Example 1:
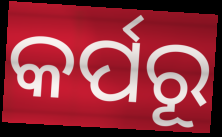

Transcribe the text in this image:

କର୍ପରୂ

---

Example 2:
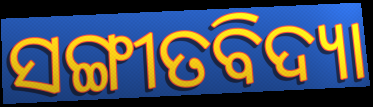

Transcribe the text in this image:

ସଙ୍ଗୀତବିଦ୍ୟା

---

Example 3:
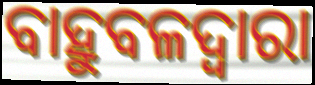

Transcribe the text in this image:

ବାହୁବଳଦ୍ୱାରା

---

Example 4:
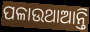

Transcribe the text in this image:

ପଳାଉଥାଆନ୍ତି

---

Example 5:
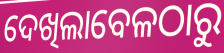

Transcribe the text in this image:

ଦେଖିଲାବେଳଠାରୁ